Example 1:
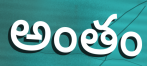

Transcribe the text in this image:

అంతం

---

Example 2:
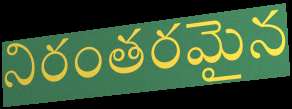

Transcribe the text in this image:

నిరంతరమైన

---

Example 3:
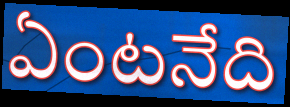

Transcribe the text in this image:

ఏంటనేది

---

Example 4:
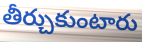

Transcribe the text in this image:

తీర్చుకుంటారు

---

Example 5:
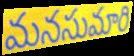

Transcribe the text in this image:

మనసుమారి